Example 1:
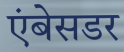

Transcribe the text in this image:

एंबेसडर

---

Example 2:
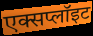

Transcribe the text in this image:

एक्सप्लॉइट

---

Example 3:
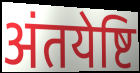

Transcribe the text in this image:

अंतयेष्टि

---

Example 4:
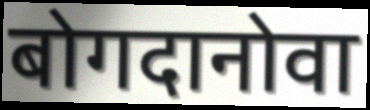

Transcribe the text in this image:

बोगदानोवा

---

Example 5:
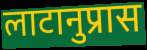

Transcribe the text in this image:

लाटानुप्रास